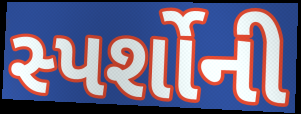
સ્પર્શોની